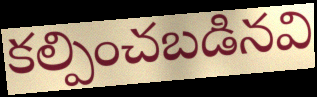
కల్పించబడినవి